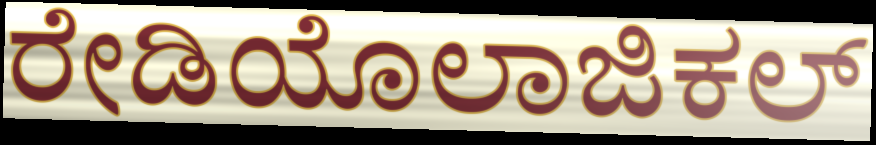
ರೇಡಿಯೊಲಾಜಿಕಲ್